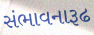
સંભાવનારૂઢ